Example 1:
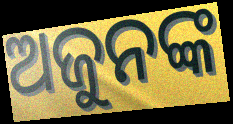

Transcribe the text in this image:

ଅଜୁନଙ୍କ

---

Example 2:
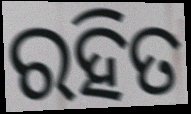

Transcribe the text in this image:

ରହିତ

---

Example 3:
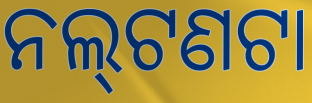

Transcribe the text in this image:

ନଲ୍‍ଟଣଟା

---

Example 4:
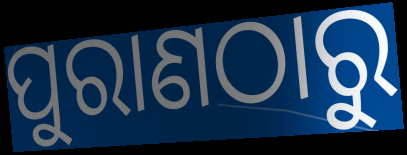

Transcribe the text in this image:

ପୁରାଣଠାରୁ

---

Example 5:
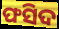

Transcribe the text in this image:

ଫସିଦ